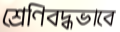
শ্রেণিবদ্ধভাবে